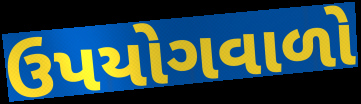
ઉપયોગવાળો